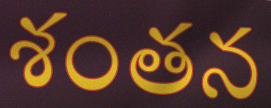
శంతన